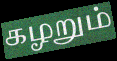
கழறும்